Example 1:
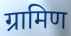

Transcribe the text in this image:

ग्रामिण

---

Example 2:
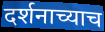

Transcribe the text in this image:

दर्शनाच्याच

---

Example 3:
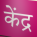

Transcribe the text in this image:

केंद्र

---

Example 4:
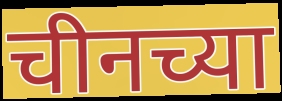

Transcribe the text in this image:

चीनच्या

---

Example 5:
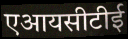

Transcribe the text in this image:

एआयसीटीई